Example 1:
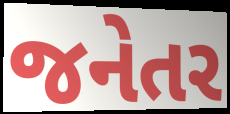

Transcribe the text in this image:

જનેતર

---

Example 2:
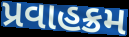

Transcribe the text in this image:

પ્રવાહક્રમ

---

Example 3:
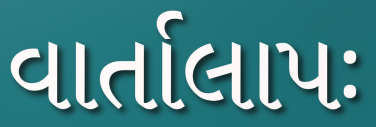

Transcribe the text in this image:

વાર્તાલાપઃ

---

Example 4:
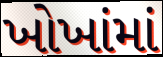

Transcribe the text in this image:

ખોખાંમાં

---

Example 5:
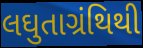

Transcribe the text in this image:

લઘુતાગ્રંથિથી